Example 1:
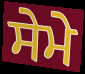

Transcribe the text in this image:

ਸੇਮੇ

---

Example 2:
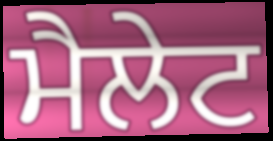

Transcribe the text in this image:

ਮੈਲੇਟ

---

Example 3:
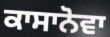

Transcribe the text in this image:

ਕਾਸਾਨੋਵਾ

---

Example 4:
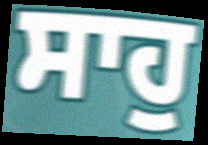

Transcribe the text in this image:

ਸਾਹੁ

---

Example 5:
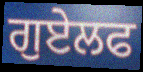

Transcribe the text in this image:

ਗੁਏਲਫ